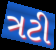
ત્રટી